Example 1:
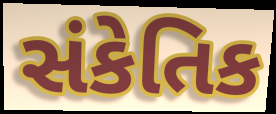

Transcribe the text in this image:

સંકેતિક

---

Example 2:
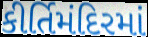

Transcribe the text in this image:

કીર્તિમંદિરમાં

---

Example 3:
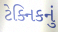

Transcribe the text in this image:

ટેક્નિકનું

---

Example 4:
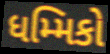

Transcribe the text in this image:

ધમ્મિકો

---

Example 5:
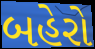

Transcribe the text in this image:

બહેરો